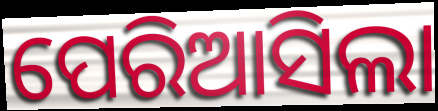
ପେରିଆସିଲା